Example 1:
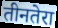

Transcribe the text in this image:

तीनतेरा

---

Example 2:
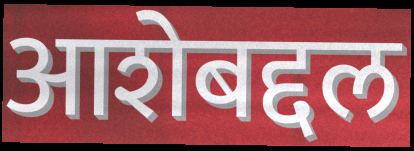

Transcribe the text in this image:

आशेबद्दल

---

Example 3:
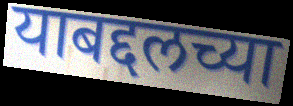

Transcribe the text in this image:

याबद्दलच्या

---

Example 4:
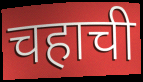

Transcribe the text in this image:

चहाची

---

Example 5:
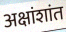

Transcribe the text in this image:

अक्षांशांत